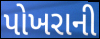
પોખરાની